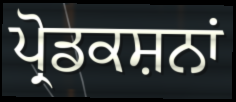
ਪ੍ਰੋਡਕਸ਼ਨਾਂ